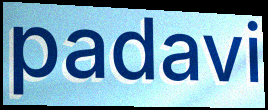
padavi